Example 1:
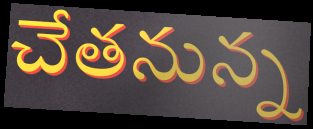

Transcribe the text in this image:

చేతనున్న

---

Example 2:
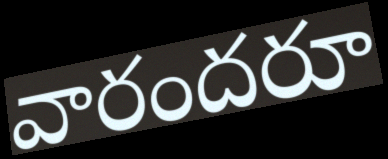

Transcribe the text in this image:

వారందరూ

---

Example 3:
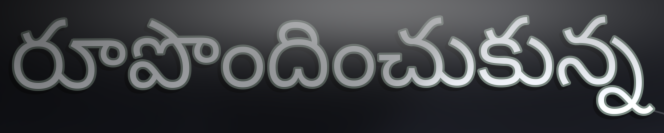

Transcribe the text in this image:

రూపొందించుకున్న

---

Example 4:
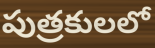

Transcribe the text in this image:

పుత్రకులలో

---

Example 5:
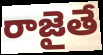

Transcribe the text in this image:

రాజైతే